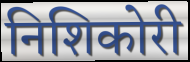
निशिकोरी